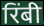
रिंबी